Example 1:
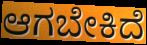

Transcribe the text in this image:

ಆಗಬೇಕಿದೆ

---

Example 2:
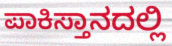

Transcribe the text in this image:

ಪಾಕಿಸ್ತಾನದಲ್ಲಿ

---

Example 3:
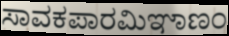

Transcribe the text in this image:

ಸಾವಕಪಾರಮಿಞಾಣಂ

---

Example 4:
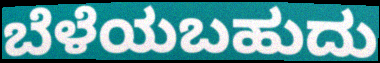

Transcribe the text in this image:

ಬೆಳೆಯಬಹುದು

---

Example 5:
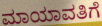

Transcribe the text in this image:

ಮಾಯಾವತಿಗೆ